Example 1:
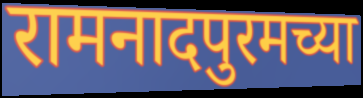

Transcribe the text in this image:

रामनादपुरमच्या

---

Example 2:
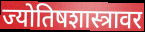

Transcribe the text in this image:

ज्योतिषशास्त्रावर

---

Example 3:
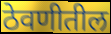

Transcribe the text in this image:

ठेवणीतील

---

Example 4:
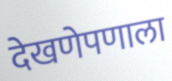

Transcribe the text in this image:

देखणेपणाला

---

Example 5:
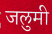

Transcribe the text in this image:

जलुमी